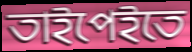
তাইপেইতে